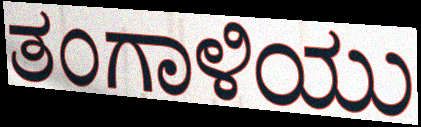
ತಂಗಾಳಿಯು